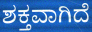
ಶಕ್ತವಾಗಿದೆ